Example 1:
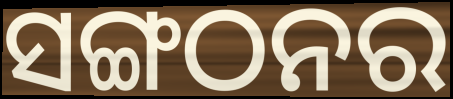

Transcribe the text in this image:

ସଙ୍ଗଠନର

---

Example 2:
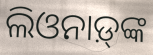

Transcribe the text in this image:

ଲିଓନାଡ଼୍‌ଙ୍କ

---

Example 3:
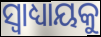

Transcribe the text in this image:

ସ୍ୱାଧ୍ୟାୟକୁ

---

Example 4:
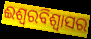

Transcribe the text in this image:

ଈଶ୍ୱରବିଶ୍ୱାସର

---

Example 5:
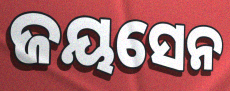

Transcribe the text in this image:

ଜୟସେନ